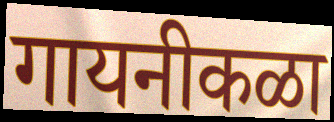
गायनीकळा